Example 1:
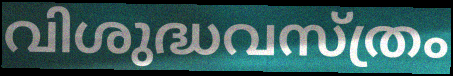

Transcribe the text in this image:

വിശുദ്ധവസ്ത്രം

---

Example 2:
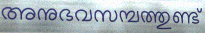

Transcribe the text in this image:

അനുഭവസമ്പത്തുണ്ട്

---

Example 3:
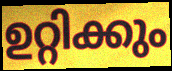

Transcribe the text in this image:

ഉറ്റിക്കും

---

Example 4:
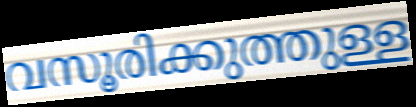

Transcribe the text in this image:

വസൂരിക്കുത്തുള്ള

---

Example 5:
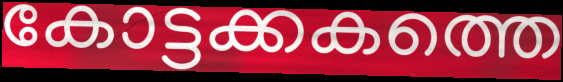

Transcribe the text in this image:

കോട്ടക്കകത്തെ